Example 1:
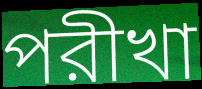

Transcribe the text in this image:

পরীখা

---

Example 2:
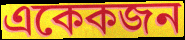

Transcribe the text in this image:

একেকজন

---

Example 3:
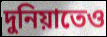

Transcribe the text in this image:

দুনিয়াতেও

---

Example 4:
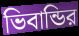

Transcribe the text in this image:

ভিবান্ডির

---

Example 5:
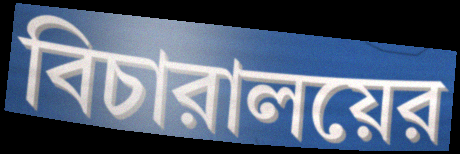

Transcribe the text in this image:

বিচারালয়ের